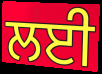
ਲਈ